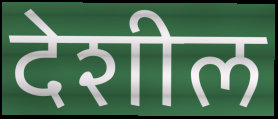
देशील